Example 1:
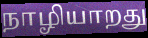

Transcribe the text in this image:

நாழியாறது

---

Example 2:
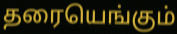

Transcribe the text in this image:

தரையெங்கும்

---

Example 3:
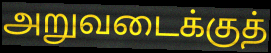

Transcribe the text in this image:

அறுவடைக்குத்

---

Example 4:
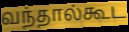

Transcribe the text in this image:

வந்தால்கூட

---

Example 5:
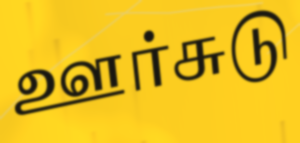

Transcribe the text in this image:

ஊர்சுடு